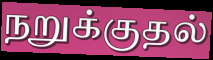
நறுக்குதல்